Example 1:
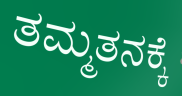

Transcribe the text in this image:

ತಮ್ಮತನಕ್ಕೆ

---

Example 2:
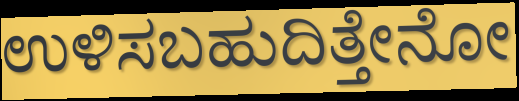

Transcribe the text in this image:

ಉಳಿಸಬಹುದಿತ್ತೇನೋ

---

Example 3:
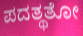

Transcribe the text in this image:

ಪದತ್ಥತೋ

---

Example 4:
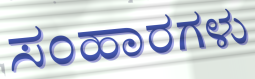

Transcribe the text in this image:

ಸಂಹಾರಗಳು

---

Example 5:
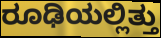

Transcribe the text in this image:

ರೂಢಿಯಲ್ಲಿತ್ತು